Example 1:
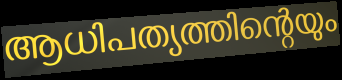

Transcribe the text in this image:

ആധിപത്യത്തിന്റെയും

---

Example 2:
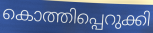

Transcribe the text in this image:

കൊത്തിപ്പെറുക്കി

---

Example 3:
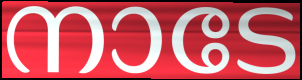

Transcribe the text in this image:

നാടേ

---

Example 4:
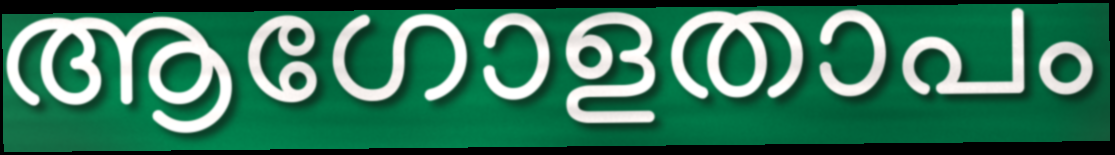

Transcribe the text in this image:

ആഗോളതാപം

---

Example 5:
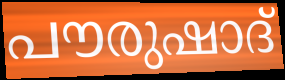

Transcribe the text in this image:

പൗരുഷാദ്